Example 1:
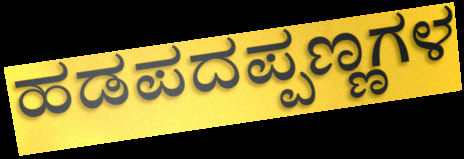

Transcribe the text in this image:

ಹಡಪದಪ್ಪಣ್ಣಗಳ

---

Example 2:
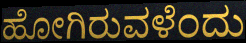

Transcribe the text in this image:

ಹೋಗಿರುವಳೆಂದು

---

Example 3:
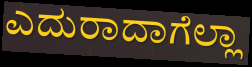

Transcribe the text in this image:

ಎದುರಾದಾಗೆಲ್ಲಾ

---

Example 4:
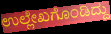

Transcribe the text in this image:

ಉಲ್ಲೇಖಗೊಂಡಿದ್ದು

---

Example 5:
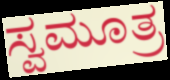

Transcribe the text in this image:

ಸ್ವಮೂತ್ರ